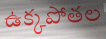
ఉక్కపోతల